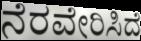
ನೆರವೇರಿಸಿದೆ